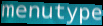
menutype